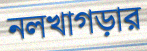
নলখাগড়ার